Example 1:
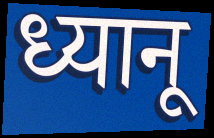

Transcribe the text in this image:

ध्यानू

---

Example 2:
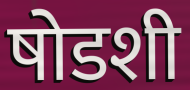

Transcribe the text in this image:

षोडशी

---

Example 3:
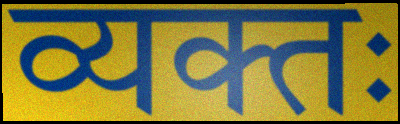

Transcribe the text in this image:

व्यक्तः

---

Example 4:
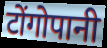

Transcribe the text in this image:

टोंगोपानी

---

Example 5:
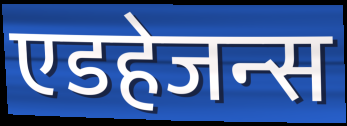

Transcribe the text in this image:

एडहेजन्स